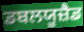
ਡਬਲਯੂਜ਼ੈਡ